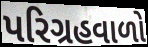
પરિગ્રહવાળો